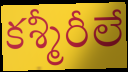
కశ్మీరీలే